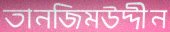
তানজিমউদ্দীন